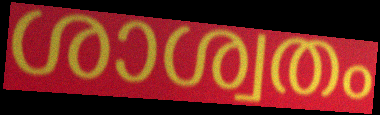
ശാശ്വതം